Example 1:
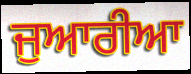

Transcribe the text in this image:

ਜੁਆਰੀਆ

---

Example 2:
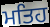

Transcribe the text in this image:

ਮਤਿਹ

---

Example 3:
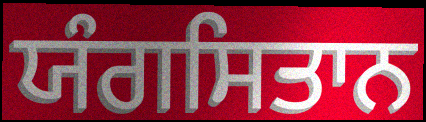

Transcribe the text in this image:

ਯੰਗਸਿਤਾਨ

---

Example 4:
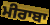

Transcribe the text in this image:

ਮੀਰਾਬਾ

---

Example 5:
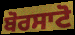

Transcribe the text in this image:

ਬੋਰਸਾਟੋ